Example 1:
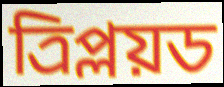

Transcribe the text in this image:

ত্রিপ্লয়ড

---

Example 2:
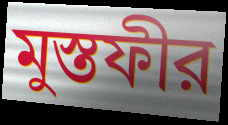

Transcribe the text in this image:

মুস্তফীর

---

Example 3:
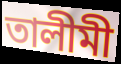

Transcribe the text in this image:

তালীমী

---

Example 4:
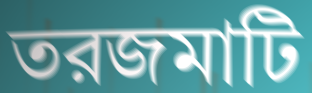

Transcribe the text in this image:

তরজমাটি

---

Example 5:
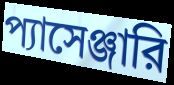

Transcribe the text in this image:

প্যাসেঞ্জারি